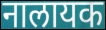
नालायक